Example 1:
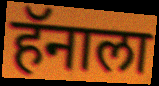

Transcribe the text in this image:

हॅनाला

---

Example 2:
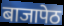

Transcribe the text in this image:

बाजापेठ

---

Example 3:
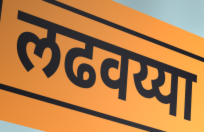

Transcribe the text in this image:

लढवय्या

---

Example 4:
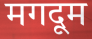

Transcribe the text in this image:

मगदूम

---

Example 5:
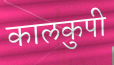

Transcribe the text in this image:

कालकुपी